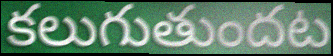
కలుగుతుందట